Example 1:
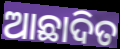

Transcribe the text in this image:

ଆଛାଦିତ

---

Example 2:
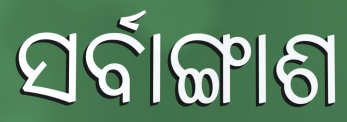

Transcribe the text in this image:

ସର୍ବାଙ୍ଗାଶ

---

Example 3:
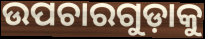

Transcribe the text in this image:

ଉପଚାରଗୁଡ଼ାକୁ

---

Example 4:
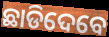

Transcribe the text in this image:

ଛାଡିଦେବେ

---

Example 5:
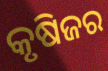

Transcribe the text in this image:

କୃଷିଜର